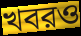
খবরও